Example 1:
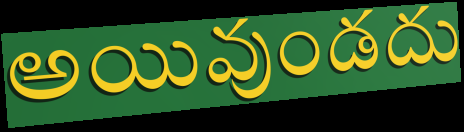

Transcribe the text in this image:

అయివుండదు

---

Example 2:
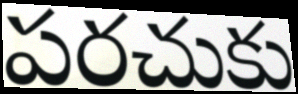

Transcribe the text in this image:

పరచుకు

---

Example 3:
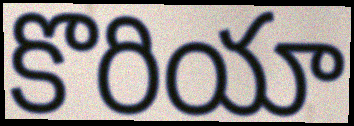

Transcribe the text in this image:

కొరియా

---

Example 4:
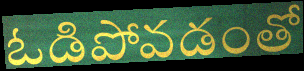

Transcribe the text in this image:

ఓడిపోవడంతో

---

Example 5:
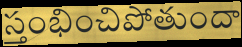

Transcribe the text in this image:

స్తంభించిపోతుందా